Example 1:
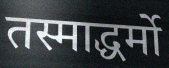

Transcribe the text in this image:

तस्माद्धर्मो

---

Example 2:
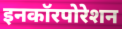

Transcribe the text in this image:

इनकॉरपोरेशन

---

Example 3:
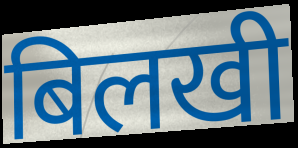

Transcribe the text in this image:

बिलखी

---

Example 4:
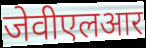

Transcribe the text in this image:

जेवीएलआर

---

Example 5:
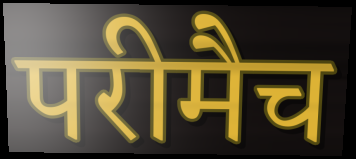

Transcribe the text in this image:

परीमैच